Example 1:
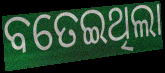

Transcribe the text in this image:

ବତେଇଥିଲା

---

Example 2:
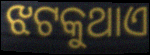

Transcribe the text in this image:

ଝଟକୁଥାଏ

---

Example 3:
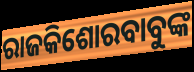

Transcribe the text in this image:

ରାଜକିଶୋରବାବୁଙ୍କ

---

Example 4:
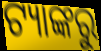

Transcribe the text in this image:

ଟ୍ୟାଙ୍କରୁ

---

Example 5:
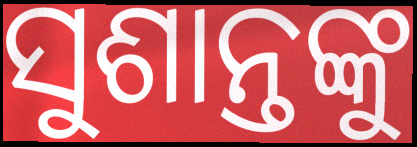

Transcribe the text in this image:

ସୁଶାନ୍ତଙ୍କୁ